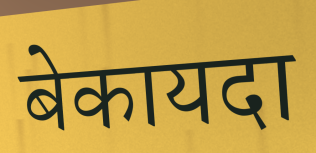
बेकायदा